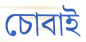
চোবাই